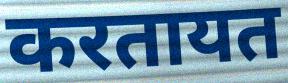
करतायत